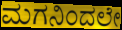
ಮಗನಿಂದಲೇ